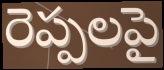
రెప్పలపై